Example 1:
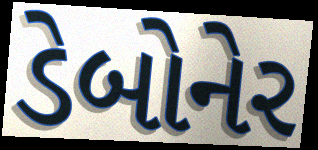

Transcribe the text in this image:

ડેબોનેર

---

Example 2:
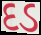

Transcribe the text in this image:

દડ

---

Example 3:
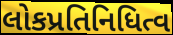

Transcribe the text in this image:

લોકપ્રતિનિધિત્વ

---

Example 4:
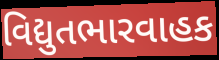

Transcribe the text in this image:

વિદ્યુતભારવાહક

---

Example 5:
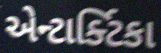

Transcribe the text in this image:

એન્ટાર્ક્ટિકા